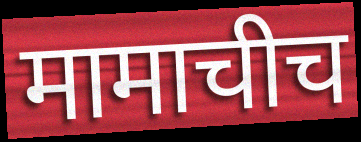
मामाचीच